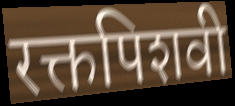
रक्तपिशवी